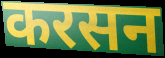
करसन